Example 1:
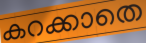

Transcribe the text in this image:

കറക്കാതെ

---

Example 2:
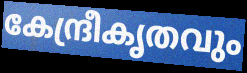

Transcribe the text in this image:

കേന്ദ്രീകൃതവും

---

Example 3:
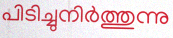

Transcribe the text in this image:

പിടിച്ചുനിർത്തുന്നു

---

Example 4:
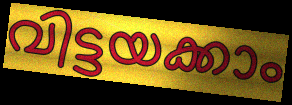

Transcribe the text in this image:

വിട്ടയക്കാം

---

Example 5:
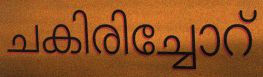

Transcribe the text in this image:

ചകിരിച്ചോറ്